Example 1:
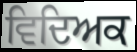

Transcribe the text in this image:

ਵਿਦਿਅਕ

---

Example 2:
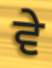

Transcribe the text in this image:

ਵੇ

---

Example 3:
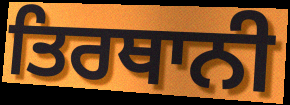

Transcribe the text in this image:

ਤਿਰਥਾਨੀ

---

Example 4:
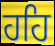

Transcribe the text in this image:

ਹਹਿ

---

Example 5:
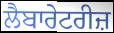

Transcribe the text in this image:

ਲੈਬਾਰੇਟਰੀਜ਼